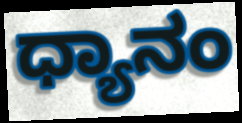
ಧ್ಯಾನಂ